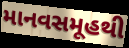
માનવસમૂહથી